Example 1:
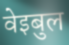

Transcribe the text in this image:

वेइबुल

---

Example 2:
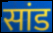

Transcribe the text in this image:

सांड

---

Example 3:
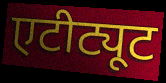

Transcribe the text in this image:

एटीट्यूट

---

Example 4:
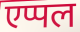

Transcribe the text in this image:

एप्पल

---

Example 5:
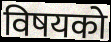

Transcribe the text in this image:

विषयको